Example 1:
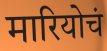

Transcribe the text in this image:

मारियोचं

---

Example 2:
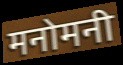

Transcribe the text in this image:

मनोमनी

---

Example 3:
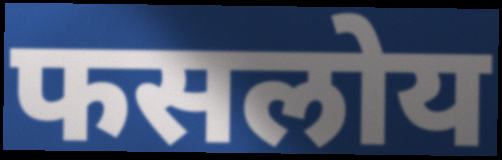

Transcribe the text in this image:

फसलोय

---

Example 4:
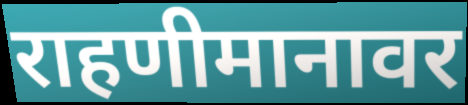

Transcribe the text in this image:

राहणीमानावर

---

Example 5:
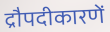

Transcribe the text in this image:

द्रौपदीकारणें